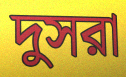
দুসরা